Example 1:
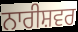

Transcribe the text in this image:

ਨਾਰੀਸ਼ਵਰ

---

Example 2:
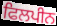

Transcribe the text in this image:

ਫਿਲਪੀਨ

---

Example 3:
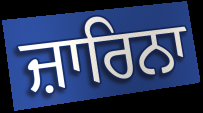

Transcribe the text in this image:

ਜ਼ਾਰਿਨਾ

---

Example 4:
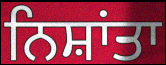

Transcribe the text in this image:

ਨਿਸ਼ਾਂਤਾ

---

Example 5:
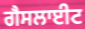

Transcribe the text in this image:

ਗੈਸਲਾਈਟ